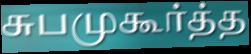
சுபமுகூர்த்த